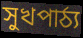
সুখপাঠ্য